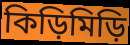
কিড়িমিড়ি